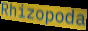
Rhizopoda